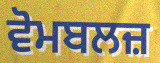
ਵੋਮਬਲਜ਼